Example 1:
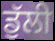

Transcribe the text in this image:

ਡੁੱਲੀ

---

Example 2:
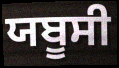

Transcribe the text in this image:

ਯਬੂਸੀ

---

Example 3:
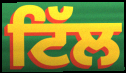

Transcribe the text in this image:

ਟਿੱਲ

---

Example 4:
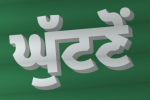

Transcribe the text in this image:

ਘੁੱਟਣੋਂ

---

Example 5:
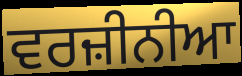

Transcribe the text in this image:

ਵਰਜ਼ੀਨੀਆ